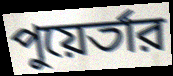
পুয়ের্তার